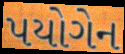
પયોગેન